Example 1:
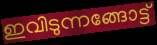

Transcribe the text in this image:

ഇവിടുന്നങ്ങോട്ട്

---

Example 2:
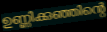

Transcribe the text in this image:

ഉണ്ണിക്കുഞ്ഞിന്റെ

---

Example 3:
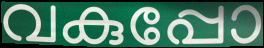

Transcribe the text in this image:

വകുപ്പോ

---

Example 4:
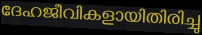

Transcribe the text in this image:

ദേഹജീവികളായിതിരിച്ചു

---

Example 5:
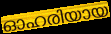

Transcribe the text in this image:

ഓഹരിയായ